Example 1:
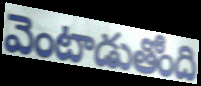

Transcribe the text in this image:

వెంటాడుతోంది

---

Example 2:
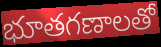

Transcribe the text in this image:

భూతగణాలతో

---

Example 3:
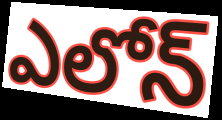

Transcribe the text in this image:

ఎలోన్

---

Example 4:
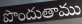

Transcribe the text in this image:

పొందుతాము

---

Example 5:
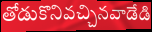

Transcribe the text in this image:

తోడుకొనివచ్చినవాడేడి